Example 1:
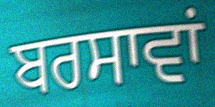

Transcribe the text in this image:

ਬਰਸਾਵਾਂ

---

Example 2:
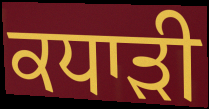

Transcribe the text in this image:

ਕਧਾੜੀ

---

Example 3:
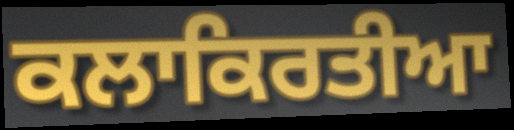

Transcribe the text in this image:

ਕਲਾਕਿਰਤੀਆ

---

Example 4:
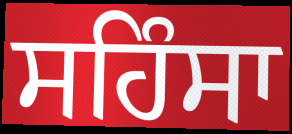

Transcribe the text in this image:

ਸਹਿੰਸਾ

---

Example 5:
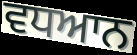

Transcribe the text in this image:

ਵਧਆਨ